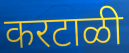
करटाळी